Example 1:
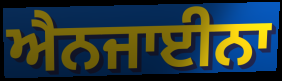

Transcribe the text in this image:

ਐਨਜਾਈਨਾ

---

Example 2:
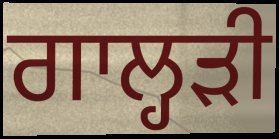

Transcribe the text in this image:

ਗਾਲ੍ਹੜੀ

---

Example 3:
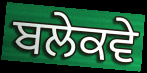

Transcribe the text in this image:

ਬਲੇਕਵੇ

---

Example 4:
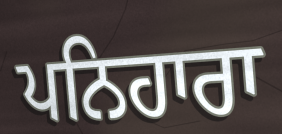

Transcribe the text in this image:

ਪਨਿਹਾਰਾ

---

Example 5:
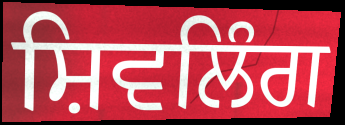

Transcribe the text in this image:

ਸ਼ਿਵਲਿੰਗ